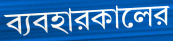
ব্যবহারকালের